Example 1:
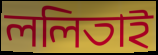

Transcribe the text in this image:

ললিতাই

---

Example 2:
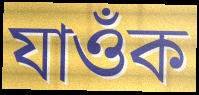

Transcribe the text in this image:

যাওঁক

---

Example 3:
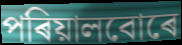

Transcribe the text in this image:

পৰিয়ালবোৰে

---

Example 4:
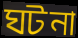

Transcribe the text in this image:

ঘটনা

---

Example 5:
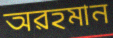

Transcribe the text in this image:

অৱহমান